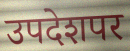
उपदेशपर